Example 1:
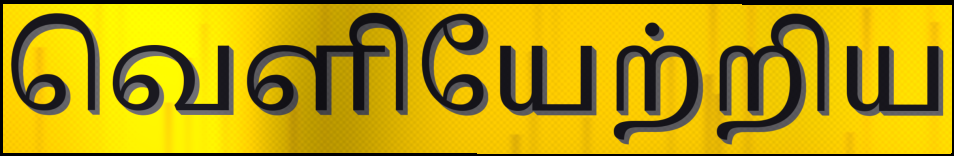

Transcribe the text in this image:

வெளியேற்றிய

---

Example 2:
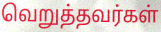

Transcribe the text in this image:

வெறுத்தவர்கள்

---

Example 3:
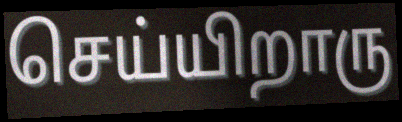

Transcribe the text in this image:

செய்யிறாரு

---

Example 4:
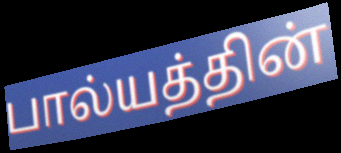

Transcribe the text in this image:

பால்யத்தின்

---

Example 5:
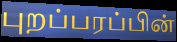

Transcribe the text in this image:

புறப்பரப்பின்